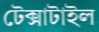
টেক্সাটাইল